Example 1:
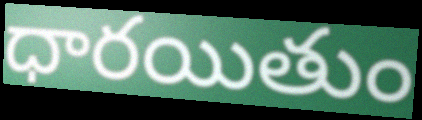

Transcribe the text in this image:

ధారయితుం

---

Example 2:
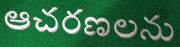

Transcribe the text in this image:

ఆచరణలను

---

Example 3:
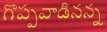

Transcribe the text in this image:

గొప్పవాడినన్న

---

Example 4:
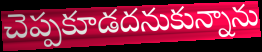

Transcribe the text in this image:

చెప్పకూడదనుకున్నాను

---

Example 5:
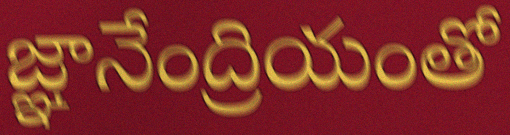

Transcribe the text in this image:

జ్ఞానేంద్రియంతో